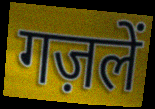
गज़लें